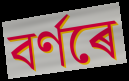
বৰ্ণৰে